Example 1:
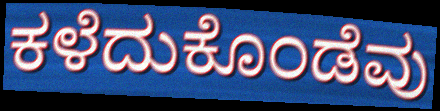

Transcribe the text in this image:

ಕಳೆದುಕೊಂಡೆವು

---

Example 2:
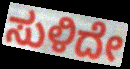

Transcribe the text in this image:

ಸುಳಿದೇ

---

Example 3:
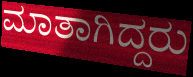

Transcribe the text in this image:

ಮಾತಾಗಿದ್ದರು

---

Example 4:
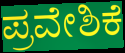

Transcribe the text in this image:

ಪ್ರವೇಶಿಕೆ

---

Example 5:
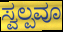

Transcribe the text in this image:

ಸ್ವಲ್ಪವೂ